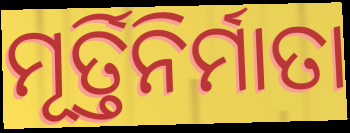
ମୂର୍ତ୍ତିନିର୍ମାତା